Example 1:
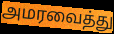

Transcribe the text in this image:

அமரவைத்து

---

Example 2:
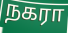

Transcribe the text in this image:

நகரா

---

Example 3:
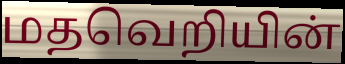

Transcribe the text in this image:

மதவெறியின்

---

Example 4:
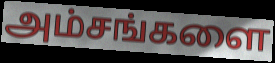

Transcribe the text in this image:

அம்சங்களை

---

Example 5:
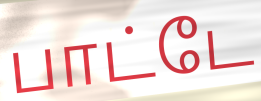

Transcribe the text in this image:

பாட்டே